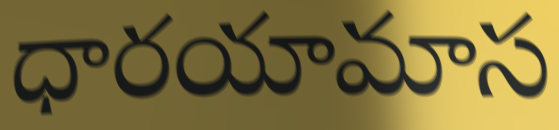
ధారయామాస